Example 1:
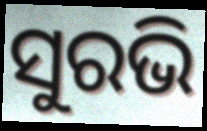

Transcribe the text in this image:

ସୁରଭି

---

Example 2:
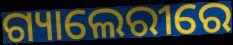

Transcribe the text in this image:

ଗ୍ୟାଲେରୀରେ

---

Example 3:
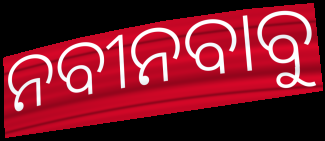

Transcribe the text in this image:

ନବୀନବାବୁ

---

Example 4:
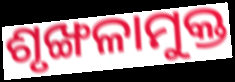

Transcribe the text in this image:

ଶୃଙ୍ଖଳାମୁକ୍ତ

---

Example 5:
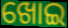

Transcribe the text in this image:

ଖୋଇ